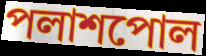
পলাশপোল